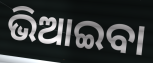
ଭିଆଇବା